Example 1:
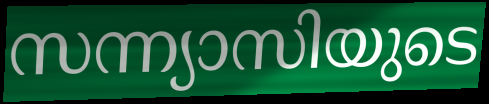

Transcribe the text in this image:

സന്ന്യാസിയുടെ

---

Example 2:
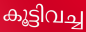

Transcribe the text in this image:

കൂട്ടിവച്ച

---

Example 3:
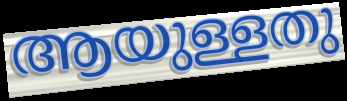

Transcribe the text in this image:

ആയുള്ളതു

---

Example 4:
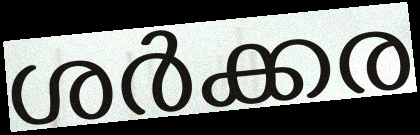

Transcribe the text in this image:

ശർക്കര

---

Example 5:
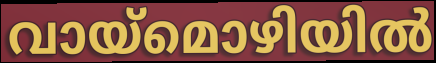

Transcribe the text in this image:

വായ്മൊഴിയിൽ